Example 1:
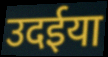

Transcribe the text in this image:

उदईया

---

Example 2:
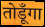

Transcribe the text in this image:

तोडूँगा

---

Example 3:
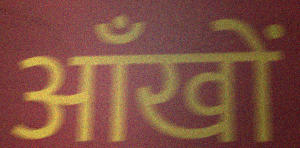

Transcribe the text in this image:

आँखों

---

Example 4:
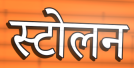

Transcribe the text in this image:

स्टोलन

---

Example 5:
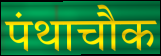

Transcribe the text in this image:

पंथाचौक